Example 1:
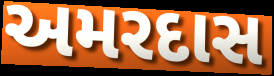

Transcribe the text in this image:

અમરદાસ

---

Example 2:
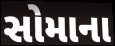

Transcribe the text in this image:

સોમાના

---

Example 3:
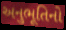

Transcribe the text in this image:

અનુભૂતિનો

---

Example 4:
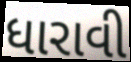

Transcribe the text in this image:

ધારાવી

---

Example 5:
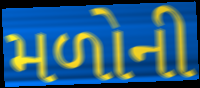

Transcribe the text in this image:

મળોની